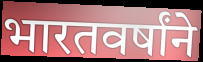
भारतवर्षांने